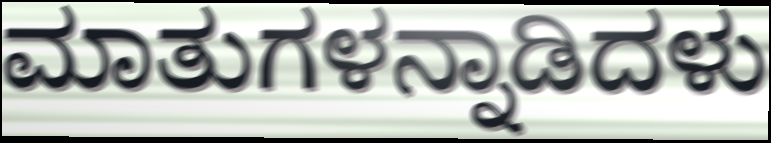
ಮಾತುಗಳನ್ನಾಡಿದಳು